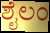
ಶೈಲಂ